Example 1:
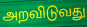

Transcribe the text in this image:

அறவிடுவது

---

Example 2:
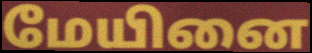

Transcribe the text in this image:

மேயினை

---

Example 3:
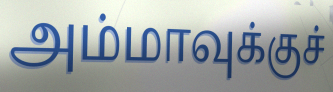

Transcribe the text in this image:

அம்மாவுக்குச்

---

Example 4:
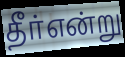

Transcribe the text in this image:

தீர்என்று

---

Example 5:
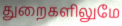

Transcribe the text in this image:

துறைகளிலுமே